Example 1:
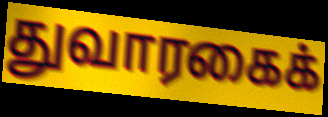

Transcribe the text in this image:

துவாரகைக்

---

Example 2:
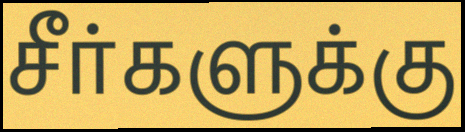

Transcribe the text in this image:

சீர்களுக்கு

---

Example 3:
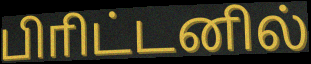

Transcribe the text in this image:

பிரிட்டனில்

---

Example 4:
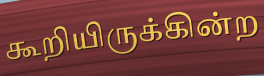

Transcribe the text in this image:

கூறியிருக்கின்ற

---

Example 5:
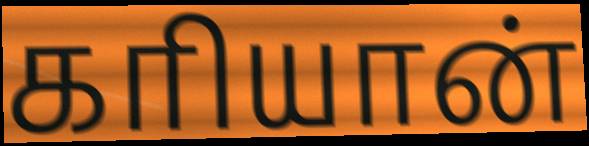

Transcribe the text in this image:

கரியான்